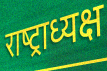
राष्ट्राध्यक्ष